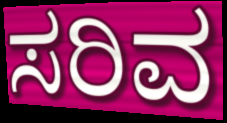
ಸರಿವ